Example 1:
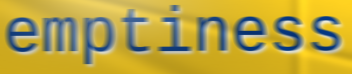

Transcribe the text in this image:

emptiness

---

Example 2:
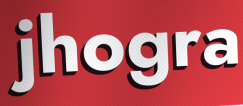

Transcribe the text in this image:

jhogra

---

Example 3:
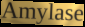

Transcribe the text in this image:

Amylase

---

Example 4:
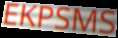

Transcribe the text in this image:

EKPSMS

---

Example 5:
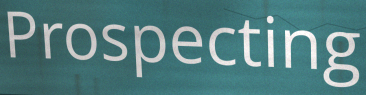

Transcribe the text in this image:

Prospecting